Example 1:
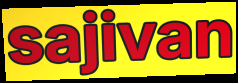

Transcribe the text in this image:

sajivan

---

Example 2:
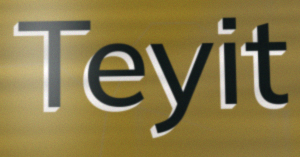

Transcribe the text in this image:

Teyit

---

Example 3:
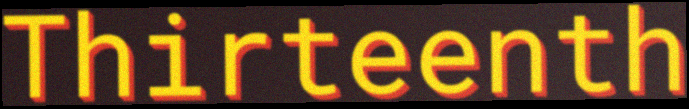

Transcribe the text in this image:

Thirteenth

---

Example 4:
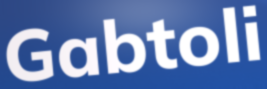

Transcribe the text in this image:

Gabtoli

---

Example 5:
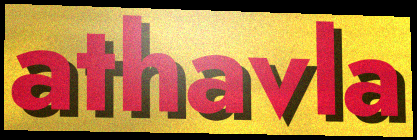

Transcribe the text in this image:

athavla